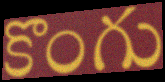
కొంగు